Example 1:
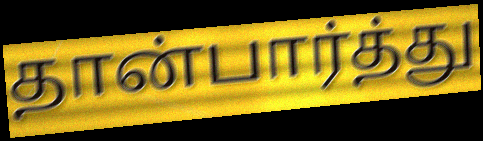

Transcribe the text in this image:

தான்பார்த்து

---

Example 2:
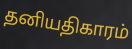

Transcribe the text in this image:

தனியதிகாரம்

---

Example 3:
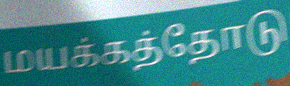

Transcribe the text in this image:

மயக்கத்தோடு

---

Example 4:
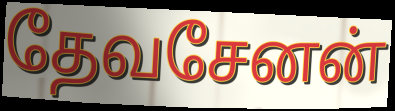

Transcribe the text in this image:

தேவசேனன்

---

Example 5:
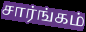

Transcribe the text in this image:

சார்ங்கம்